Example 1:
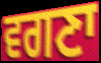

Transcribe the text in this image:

ਵਗਣਾ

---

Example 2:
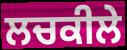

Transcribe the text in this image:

ਲਚਕੀਲੇ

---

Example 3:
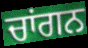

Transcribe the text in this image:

ਚਾਂਗਨ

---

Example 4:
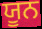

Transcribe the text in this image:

ਯੂਨ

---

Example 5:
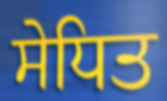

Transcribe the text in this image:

ਸੇਧਿਤ